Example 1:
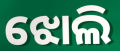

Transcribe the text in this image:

ଝୋଲି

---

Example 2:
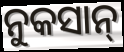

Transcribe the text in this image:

ନୁକସାନ୍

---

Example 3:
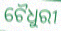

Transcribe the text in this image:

ଚୈଧୁରୀ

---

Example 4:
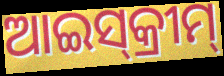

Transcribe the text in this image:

ଆଇସ୍‌କ୍ରୀମ୍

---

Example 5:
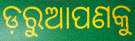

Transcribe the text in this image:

ଡ଼ରୁଆପଣକୁ